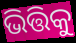
ଭିତ୍ତିକୁ